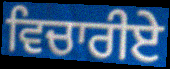
ਵਿਚਾਰੀਏ